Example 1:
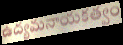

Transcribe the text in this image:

ఉద్యమనాయకత్వం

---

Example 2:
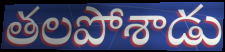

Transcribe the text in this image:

తలపోశాడు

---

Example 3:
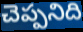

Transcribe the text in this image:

చెప్పనిది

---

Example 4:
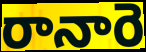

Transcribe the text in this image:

రానారె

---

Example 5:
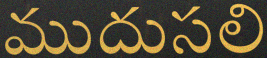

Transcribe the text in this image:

ముదుసలి